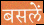
बसलें